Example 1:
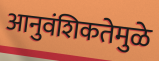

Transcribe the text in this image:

आनुवंशिकतेमुळे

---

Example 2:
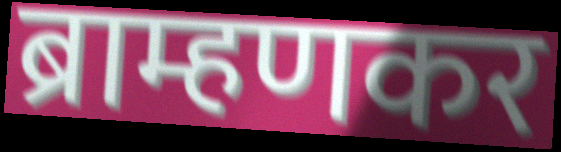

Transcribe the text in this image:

ब्राम्हणकर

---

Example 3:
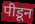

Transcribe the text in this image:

पीडून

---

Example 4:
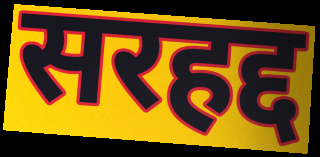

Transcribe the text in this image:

सरहद्द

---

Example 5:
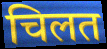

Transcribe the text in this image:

चिलत